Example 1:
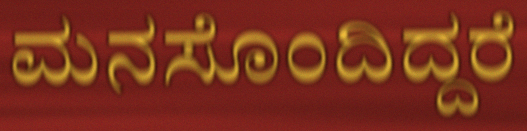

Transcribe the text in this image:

ಮನಸೊಂದಿದ್ದರೆ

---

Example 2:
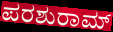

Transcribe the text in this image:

ಪರಶುರಾಮ್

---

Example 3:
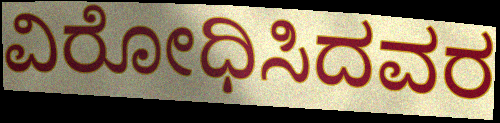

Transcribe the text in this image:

ವಿರೋಧಿಸಿದವರ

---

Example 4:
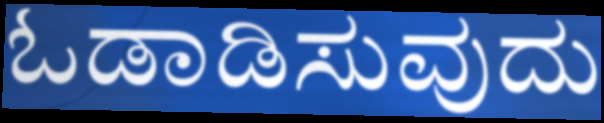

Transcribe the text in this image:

ಓಡಾಡಿಸುವುದು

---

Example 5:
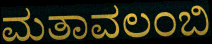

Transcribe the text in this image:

ಮತಾವಲಂಬಿ